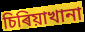
চিৰিয়াখানা